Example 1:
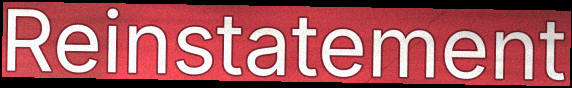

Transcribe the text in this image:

Reinstatement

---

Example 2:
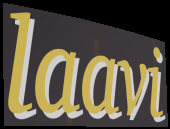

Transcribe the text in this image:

laavi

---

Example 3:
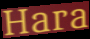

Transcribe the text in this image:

Hara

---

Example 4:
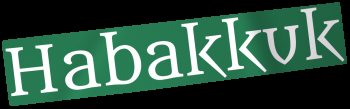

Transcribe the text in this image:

Habakkuk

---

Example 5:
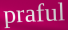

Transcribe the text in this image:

praful